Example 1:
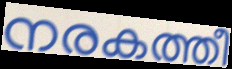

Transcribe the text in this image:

നരകത്തീ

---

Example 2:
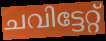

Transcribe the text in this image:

ചവിട്ടേറ്റ്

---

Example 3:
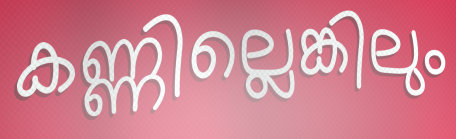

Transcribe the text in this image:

കണ്ണില്ലെങ്കിലും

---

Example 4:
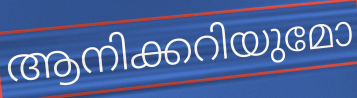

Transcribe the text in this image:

ആനിക്കറിയുമോ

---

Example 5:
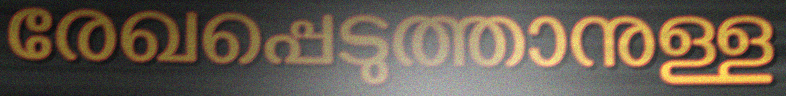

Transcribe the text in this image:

രേഖപ്പെടുത്താനുള്ള